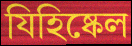
যিহিষ্কেল